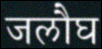
जलौघ